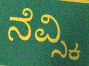
ನೆವ್ಸ್ಕಿ